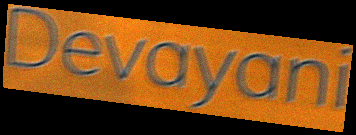
Devayani